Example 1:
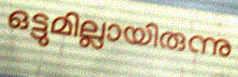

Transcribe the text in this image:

ഒട്ടുമില്ലായിരുന്നു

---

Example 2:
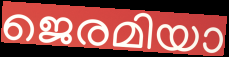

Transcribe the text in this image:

ജെരമിയാ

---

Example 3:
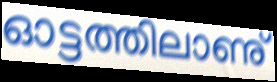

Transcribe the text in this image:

ഓട്ടത്തിലാണു്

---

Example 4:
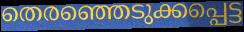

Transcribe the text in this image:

തെരഞ്ഞെടുക്കപ്പെട്ട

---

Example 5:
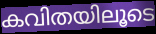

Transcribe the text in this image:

കവിതയിലൂടെ